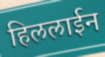
हिललाईन